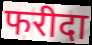
फरीदा